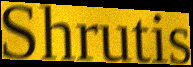
Shrutis